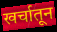
खर्चातून